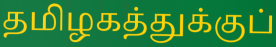
தமிழகத்துக்குப்